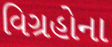
વિગ્રહોના